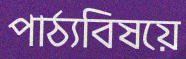
পাঠ্যবিষয়ে